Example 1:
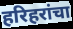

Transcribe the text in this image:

हरिहरांचा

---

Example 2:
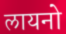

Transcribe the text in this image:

लायनो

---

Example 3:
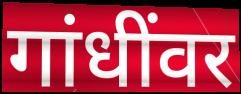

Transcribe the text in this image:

गांधींवर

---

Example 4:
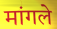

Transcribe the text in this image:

मांगले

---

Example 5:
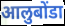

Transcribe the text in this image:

आलुबोंडा